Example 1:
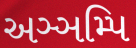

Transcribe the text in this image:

અઞ્ઞમ્પિ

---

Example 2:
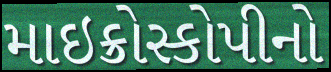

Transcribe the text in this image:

માઇક્રોસ્કોપીનો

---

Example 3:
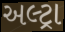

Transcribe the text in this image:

અલ્ટ્રા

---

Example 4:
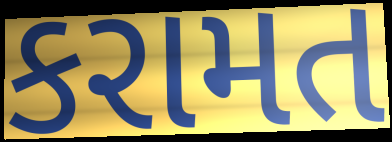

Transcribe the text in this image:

કરામત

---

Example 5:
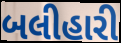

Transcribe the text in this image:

બલીહારી